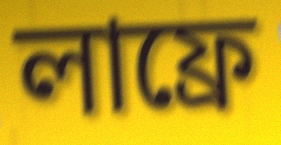
লাফ্রে